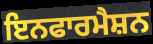
ਇਨਫਾਰਮੈਸ਼ਨ